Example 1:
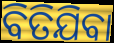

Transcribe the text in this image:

ବିତିଯିବା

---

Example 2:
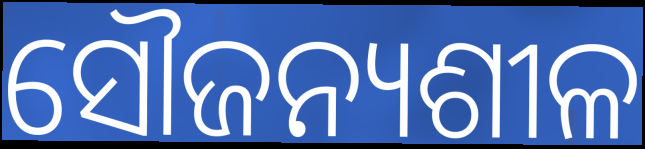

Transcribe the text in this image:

ସୌଜନ୍ୟଶୀଳ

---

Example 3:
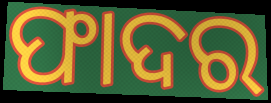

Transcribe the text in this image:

ଫାଦର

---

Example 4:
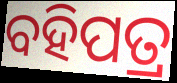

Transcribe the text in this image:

ବହିପତ୍ର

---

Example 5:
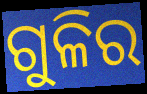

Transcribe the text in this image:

ଗୁଳିର